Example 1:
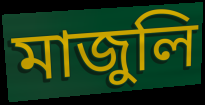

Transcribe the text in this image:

মাজুলি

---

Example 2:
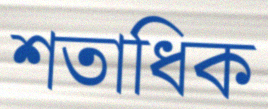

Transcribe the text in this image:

শতাধিক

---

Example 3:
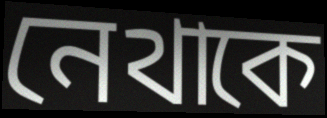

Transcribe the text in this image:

নেথাকে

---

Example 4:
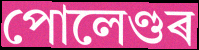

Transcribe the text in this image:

পোলেণ্ডৰ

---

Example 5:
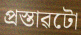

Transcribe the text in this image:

প্ৰস্তাৱটো